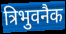
त्रिभुवनैक